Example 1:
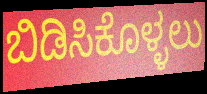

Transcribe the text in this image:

ಬಿಡಿಸಿಕೊಳ್ಳಲು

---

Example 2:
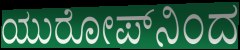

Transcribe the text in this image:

ಯುರೋಪ್‌ನಿಂದ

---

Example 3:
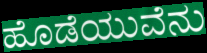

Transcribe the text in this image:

ಹೊಡೆಯುವೆನು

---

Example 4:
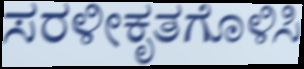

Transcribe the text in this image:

ಸರಳೀಕೃತಗೊಳಿಸಿ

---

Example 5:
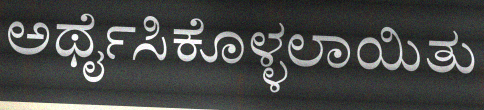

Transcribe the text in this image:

ಅರ್ಥೈಸಿಕೊಳ್ಳಲಾಯಿತು